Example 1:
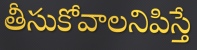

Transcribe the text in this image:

తీసుకోవాలనిపిస్తే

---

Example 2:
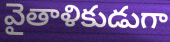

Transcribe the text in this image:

వైతాళికుడుగా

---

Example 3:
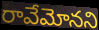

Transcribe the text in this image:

రావేమోనని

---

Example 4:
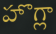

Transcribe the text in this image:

హొగ్లా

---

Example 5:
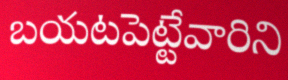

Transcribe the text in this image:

బయటపెట్టేవారిని